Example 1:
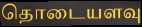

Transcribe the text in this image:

தொடையளவு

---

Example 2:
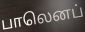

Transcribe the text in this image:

பாலெனப்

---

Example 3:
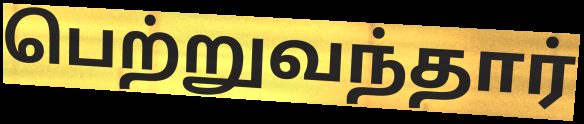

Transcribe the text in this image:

பெற்றுவந்தார்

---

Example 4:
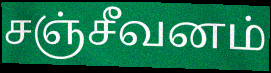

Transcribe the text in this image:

சஞ்சீவனம்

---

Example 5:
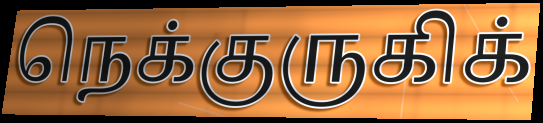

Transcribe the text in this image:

நெக்குருகிக்